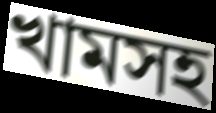
খামসহ